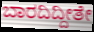
ಬಾರದಿದ್ದೀತೇ